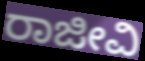
ರಾಜೀವಿ